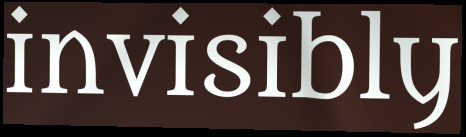
invisibly